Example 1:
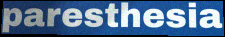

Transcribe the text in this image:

paresthesia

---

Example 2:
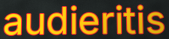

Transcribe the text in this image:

audieritis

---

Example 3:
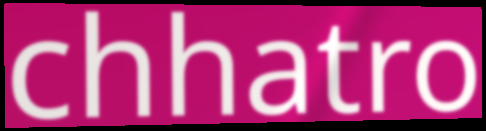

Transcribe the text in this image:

chhatro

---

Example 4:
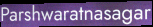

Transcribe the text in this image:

Parshwaratnasagar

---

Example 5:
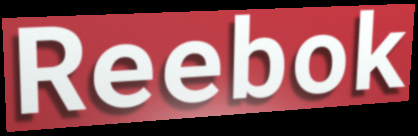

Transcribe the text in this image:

Reebok